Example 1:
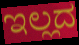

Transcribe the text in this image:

ಇಲ್ಲದ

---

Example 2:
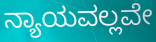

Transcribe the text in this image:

ನ್ಯಾಯವಲ್ಲವೇ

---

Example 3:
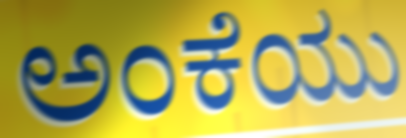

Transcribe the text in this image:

ಅಂಕೆಯು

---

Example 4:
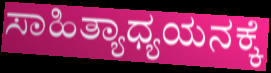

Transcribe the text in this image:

ಸಾಹಿತ್ಯಾಧ್ಯಯನಕ್ಕೆ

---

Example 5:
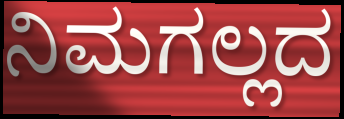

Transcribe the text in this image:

ನಿಮಗಲ್ಲದ